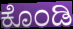
ಕೊಂಡಿ